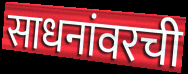
साधनांवरची